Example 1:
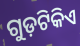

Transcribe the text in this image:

ଗୁଡ଼ଟିକିଏ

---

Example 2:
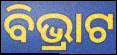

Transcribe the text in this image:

ବିଭ୍ରାଟ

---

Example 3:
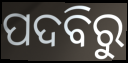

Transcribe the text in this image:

ପଦବିରୁ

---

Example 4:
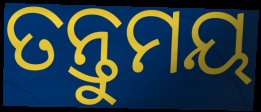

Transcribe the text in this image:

ତନ୍ତୁମୟ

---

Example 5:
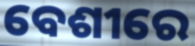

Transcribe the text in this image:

ବେଶୀରେ